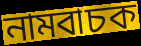
নামবাচক